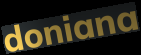
doniana